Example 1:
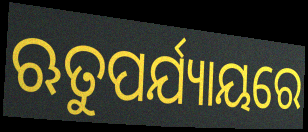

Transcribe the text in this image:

ଋତୁପର୍ଯ୍ୟାୟରେ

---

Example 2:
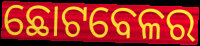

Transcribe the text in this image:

ଛୋଟବେଳର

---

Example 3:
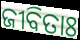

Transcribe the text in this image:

ଜୀବିତାଃ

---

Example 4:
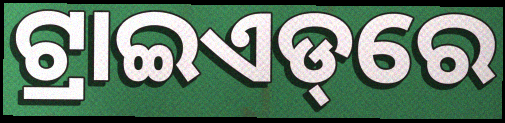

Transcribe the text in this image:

ଟ୍ରାଇଏଡ୍‌ରେ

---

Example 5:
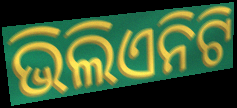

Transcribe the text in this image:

ଭିଲିଏନିଟି